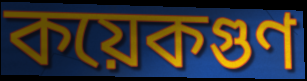
কয়েকগুণ